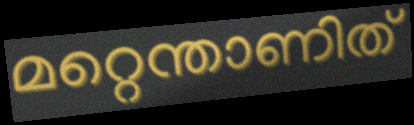
മറ്റെന്താണിത്